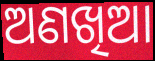
ଅଣଖିଆ